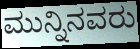
ಮುನ್ನಿನವರು